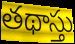
తథాస్తు